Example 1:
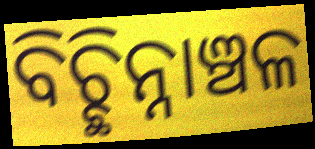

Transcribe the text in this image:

ବିଚ୍ଛିନ୍ନାଞ୍ଚଳ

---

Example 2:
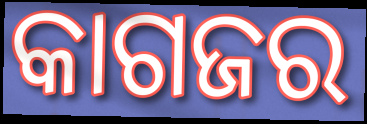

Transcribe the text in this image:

କାଗଜର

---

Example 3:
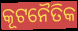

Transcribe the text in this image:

କୂଟନୈତିକ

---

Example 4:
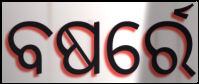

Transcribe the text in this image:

ବଷର୍ରେ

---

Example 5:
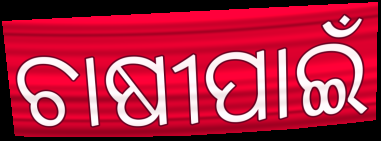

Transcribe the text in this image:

ଚାଷୀପାଇଁ